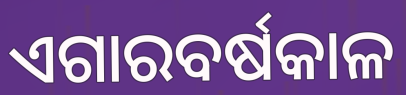
ଏଗାରବର୍ଷକାଳ